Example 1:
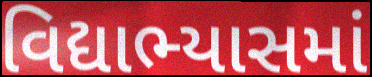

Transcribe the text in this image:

વિદ્યાભ્યાસમાં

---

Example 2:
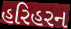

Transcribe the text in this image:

હરિહરન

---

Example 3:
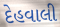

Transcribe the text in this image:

દેહવાલી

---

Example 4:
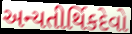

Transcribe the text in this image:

અન્યતીર્થિકદેવો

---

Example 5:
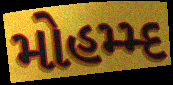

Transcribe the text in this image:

મોહમ્મ્દ